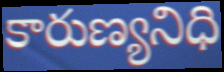
కారుణ్యనిధి